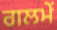
ਗਲਮੇਂ